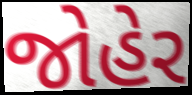
જોહેર